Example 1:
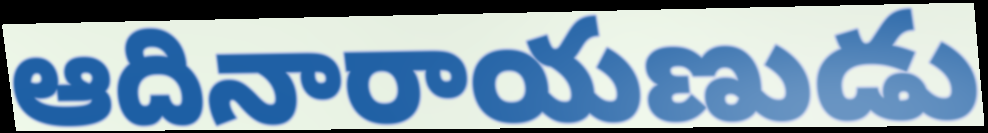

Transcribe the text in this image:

ఆదినారాయణుడు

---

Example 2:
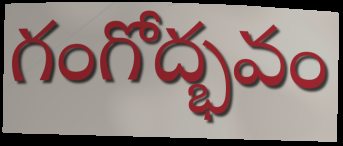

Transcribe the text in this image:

గంగోద్భవం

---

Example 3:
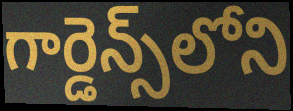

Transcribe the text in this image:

గార్డెన్స్‌లోని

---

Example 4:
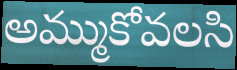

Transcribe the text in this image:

అమ్ముకోవలసి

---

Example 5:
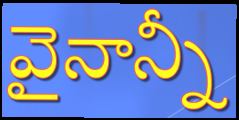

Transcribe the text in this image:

వైనాన్నీ